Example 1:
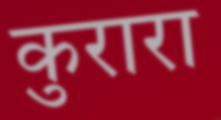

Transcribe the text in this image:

कुरारा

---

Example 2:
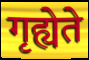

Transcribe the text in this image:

गृह्येते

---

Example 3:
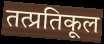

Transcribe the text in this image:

तत्प्रतिकूल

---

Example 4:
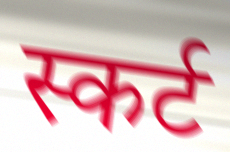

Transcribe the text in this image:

स्कर्ट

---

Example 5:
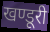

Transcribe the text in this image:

खण्डूरी